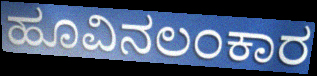
ಹೂವಿನಲಂಕಾರ